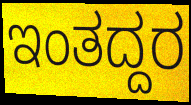
ಇಂತದ್ದರ